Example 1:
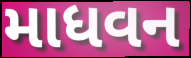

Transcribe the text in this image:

માધવન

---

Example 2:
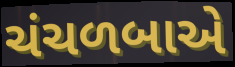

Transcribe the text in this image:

ચંચળબાએ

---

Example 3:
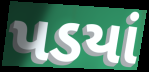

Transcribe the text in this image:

પડયાં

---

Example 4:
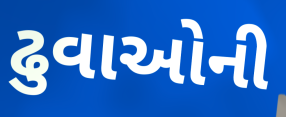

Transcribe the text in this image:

ઢુવાઓની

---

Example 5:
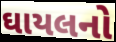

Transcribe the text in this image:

ઘાયલનો